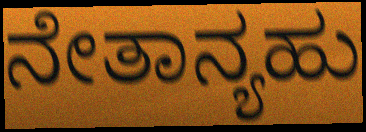
ನೇತಾನ್ಯಹು